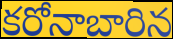
కరోనాబారిన